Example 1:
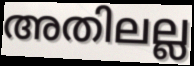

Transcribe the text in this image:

അതിലല്ല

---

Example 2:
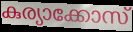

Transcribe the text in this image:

കുര്യാക്കോസ്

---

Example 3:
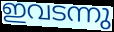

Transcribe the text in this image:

ഇവടന്നു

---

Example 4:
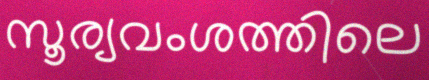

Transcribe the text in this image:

സൂര്യവംശത്തിലെ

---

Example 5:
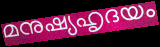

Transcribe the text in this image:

മനുഷ്യഹൃദയം